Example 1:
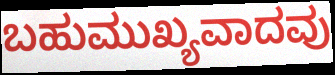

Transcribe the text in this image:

ಬಹುಮುಖ್ಯವಾದವು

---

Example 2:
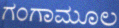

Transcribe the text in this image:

ಗಂಗಾಮೂಲ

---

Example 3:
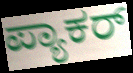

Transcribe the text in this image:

ಪ್ಯಾಕರ್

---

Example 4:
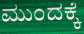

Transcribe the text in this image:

ಮುಂದಕ್ಕೆ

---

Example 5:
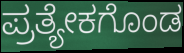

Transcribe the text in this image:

ಪ್ರತ್ಯೇಕಗೊಂಡ